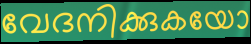
വേദനിക്കുകയോ